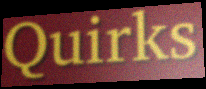
Quirks